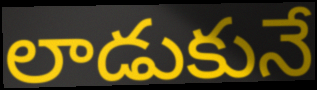
లాడుకునే